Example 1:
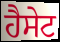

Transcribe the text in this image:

ਹੈਸੇਟ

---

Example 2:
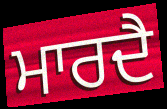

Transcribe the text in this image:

ਮਾਰਦੈ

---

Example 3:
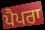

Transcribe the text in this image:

ਪੈਪਰਾ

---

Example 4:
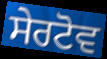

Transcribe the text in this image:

ਸੇਰਟੋਵ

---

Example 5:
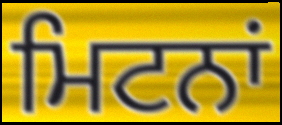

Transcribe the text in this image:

ਮਿਟਨਾਂ